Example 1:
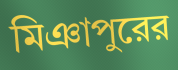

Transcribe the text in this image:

মিঞাপুরের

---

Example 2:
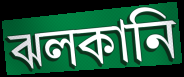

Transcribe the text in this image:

ঝলকানি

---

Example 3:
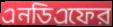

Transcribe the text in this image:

এনডিএফের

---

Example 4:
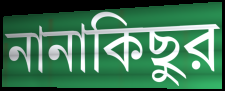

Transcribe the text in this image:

নানাকিছুর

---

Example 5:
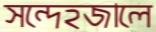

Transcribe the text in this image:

সন্দেহজালে